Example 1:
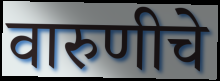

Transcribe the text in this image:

वारुणीचे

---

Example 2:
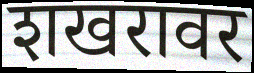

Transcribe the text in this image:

शखरावर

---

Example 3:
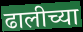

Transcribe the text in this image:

ढालीच्या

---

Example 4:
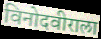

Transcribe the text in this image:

विनोदवीराला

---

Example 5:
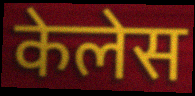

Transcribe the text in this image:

केलेस